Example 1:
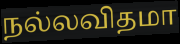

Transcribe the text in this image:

நல்லவிதமா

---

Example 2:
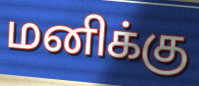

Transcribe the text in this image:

மனிக்கு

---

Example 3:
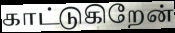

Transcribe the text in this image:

காட்டுகிறேன்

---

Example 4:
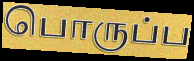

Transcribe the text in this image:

பொருப்ப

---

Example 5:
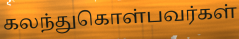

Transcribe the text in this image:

கலந்துகொள்பவர்கள்